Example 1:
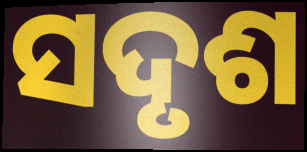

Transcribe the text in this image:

ସଦୃଶ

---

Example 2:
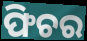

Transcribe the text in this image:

ଫିଚର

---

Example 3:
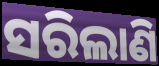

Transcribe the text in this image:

ସରିଲାଣି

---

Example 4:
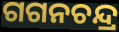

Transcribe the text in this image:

ଗଗନଚନ୍ଦ୍ର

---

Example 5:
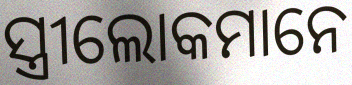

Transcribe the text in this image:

ସ୍ତ୍ରୀଲୋକମାନେ